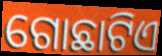
ଗୋଛାଟିଏ